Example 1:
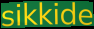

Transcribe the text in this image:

sikkide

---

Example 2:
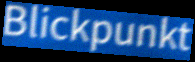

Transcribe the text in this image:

Blickpunkt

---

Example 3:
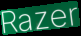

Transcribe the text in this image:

Razer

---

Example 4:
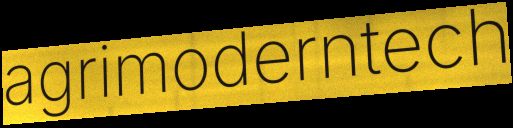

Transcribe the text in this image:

agrimoderntech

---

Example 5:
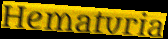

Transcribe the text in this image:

Hematuria